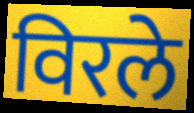
विरले